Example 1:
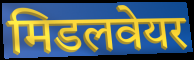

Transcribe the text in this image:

मिडलवेयर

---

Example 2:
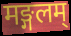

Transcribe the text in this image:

मङ्गलम्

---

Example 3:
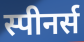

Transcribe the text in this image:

स्पीनर्स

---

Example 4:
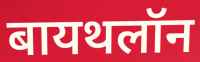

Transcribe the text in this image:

बायथलॉन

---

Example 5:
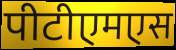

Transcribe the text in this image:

पीटीएमएस